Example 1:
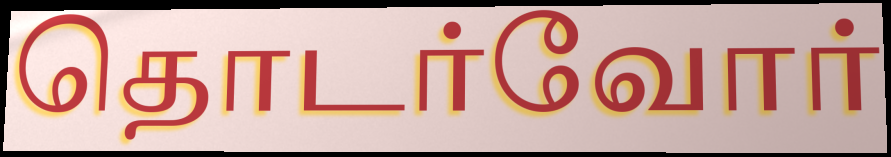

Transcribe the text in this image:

தொடர்வோர்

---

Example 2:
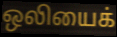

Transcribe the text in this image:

ஒலியைக்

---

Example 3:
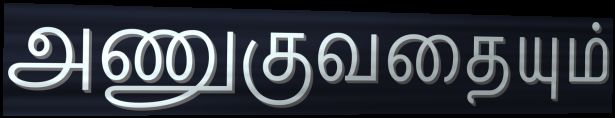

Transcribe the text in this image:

அணுகுவதையும்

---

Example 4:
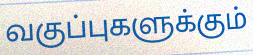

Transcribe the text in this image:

வகுப்புகளுக்கும்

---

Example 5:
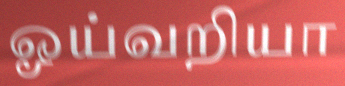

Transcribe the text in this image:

ஓய்வறியா